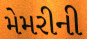
મેમરીની